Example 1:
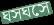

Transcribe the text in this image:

ঘসঘসে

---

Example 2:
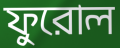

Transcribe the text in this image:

ফুরোল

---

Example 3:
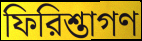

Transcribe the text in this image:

ফিরিশ্তাগণ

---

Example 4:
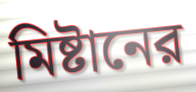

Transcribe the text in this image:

মিষ্টানের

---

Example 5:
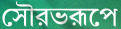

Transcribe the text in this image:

সৌরভরূপে